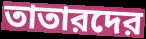
তাতারদের